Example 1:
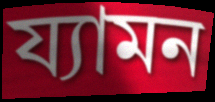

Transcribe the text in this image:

য্যামন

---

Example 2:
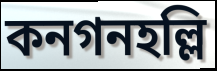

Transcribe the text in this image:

কনগনহল্লি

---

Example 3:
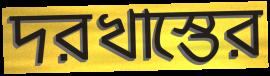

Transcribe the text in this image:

দরখাস্তের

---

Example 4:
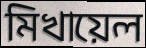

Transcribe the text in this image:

মিখায়েল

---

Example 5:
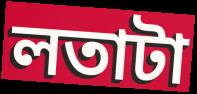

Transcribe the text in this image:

লতাটা